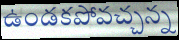
ఉండకపోవచ్చన్న